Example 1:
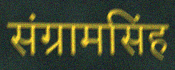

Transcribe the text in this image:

संग्रामसिंह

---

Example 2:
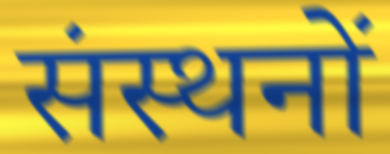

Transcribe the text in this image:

संस्थनों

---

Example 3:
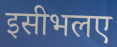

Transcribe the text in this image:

इसीभलए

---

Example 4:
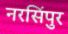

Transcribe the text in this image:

नरसिंपुर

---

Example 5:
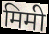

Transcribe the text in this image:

मिमी